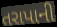
તરાપાની